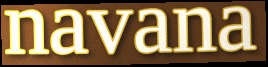
navana